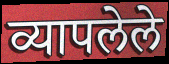
व्यापलेले